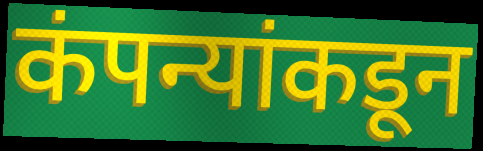
कंपन्यांकडून